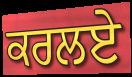
ਕਰਲਏ